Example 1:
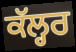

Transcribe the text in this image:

ਕੱਲ੍ਹਰ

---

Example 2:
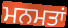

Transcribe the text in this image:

ਮਨਮਤਾਂ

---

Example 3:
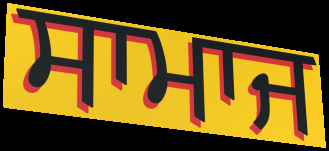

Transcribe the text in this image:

ਸਾਮਾਜ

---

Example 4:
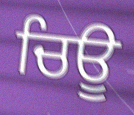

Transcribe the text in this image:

ਚਿਊ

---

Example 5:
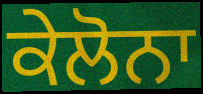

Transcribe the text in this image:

ਕੇਲੋਨਾ